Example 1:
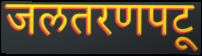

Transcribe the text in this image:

जलतरणपटू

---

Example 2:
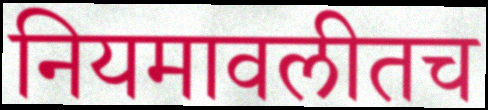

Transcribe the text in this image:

नियमावलीतच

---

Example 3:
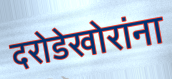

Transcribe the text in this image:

दरोडेखोरांना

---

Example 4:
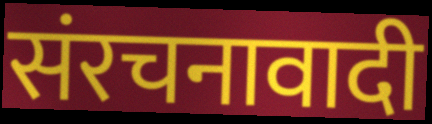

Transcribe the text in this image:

संरचनावादी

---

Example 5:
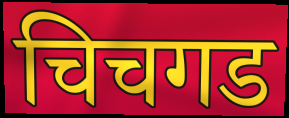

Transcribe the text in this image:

चिचगड